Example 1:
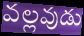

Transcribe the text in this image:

వల్లవుడు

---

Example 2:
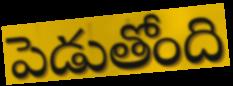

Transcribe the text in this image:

పెడుతోంది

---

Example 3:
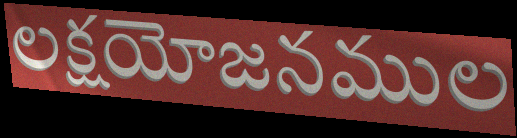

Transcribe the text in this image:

లక్షయోజనముల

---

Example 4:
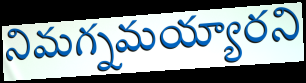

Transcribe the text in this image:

నిమగ్నమయ్యారని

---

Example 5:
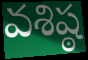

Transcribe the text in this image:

వశిష్ఠ